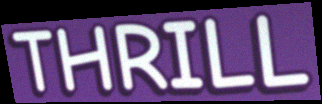
THRILL